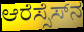
ಆರೆಸ್ಸೆಸ್‌ನ